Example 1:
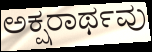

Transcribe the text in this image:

ಅಕ್ಷರಾರ್ಥವು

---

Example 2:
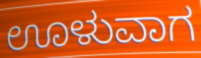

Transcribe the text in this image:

ಊಳುವಾಗ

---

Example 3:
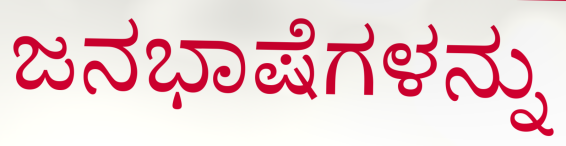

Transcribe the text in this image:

ಜನಭಾಷೆಗಳನ್ನು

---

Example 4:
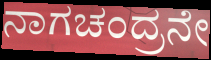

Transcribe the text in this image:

ನಾಗಚಂದ್ರನೇ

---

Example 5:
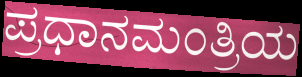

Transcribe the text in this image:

ಪ್ರಧಾನಮಂತ್ರಿಯ